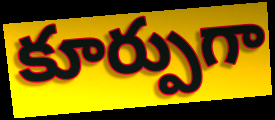
కూర్పుగా